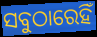
ସବୁଠାରେହିଁ